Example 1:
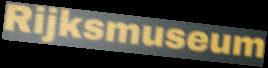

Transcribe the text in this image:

Rijksmuseum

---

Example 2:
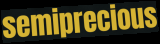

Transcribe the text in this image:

semiprecious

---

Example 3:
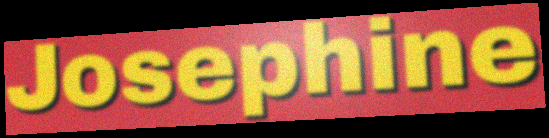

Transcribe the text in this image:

Josephine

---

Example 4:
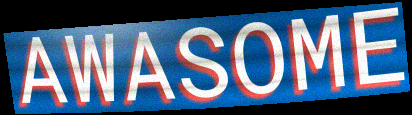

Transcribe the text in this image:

AWASOME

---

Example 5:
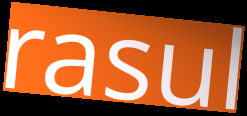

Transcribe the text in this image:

rasul